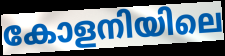
കോളനിയിലെ